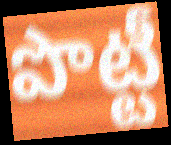
పొట్టీ